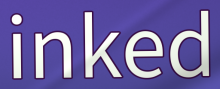
inked